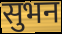
सुभन